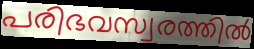
പരിഭവസ്വരത്തിൽ